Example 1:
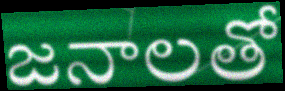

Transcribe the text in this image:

జనాలతో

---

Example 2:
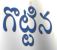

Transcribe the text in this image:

గొట్టిన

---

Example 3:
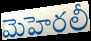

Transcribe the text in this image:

మెహెరలీ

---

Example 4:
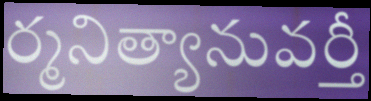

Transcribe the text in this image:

ర్మనిత్యానువర్తీ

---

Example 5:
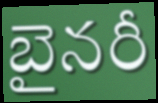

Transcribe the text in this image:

బైనరీ